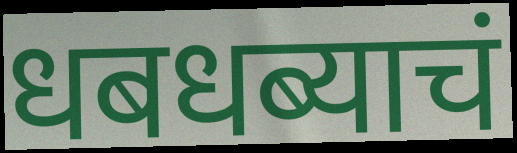
धबधब्याचं